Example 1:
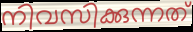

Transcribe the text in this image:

നിവസിക്കുന്നത്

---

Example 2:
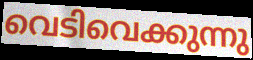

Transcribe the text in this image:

വെടിവെക്കുന്നു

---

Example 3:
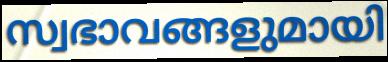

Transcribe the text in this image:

സ്വഭാവങ്ങളുമായി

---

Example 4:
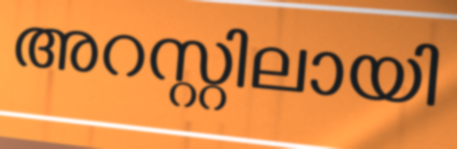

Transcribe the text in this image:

അറസ്റ്റിലായി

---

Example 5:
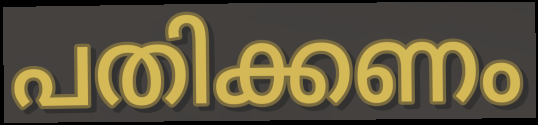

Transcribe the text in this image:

പതിക്കണം